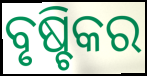
ବୃଷ୍ଚିକର